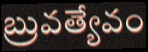
బ్రువత్యేవం